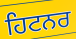
ਹਿਟਨਰ